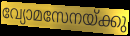
വ്യോമസേനയ്ക്കു